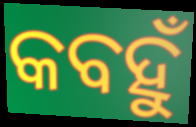
କବହୁଁ